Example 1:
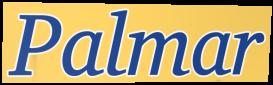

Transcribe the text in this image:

Palmar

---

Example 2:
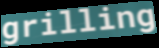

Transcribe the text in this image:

grilling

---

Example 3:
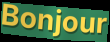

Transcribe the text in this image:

Bonjour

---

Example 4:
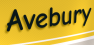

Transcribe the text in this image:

Avebury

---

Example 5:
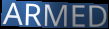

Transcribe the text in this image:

ARMED